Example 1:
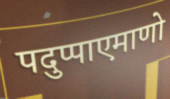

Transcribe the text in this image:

पदुप्पाएमाणो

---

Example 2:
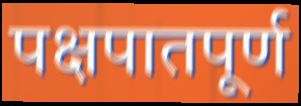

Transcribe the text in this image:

पक्षपातपूर्ण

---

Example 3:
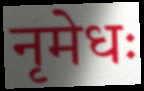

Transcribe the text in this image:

नृमेधः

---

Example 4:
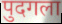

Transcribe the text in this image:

पुदगला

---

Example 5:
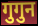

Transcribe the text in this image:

गुगुन